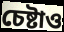
চেষ্টাও